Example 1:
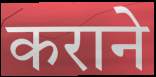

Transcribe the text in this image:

कराने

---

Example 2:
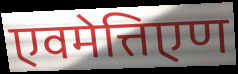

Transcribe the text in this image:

एवमेत्तिएण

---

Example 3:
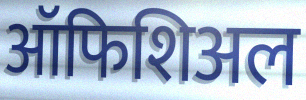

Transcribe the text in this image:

ऑफिशिअल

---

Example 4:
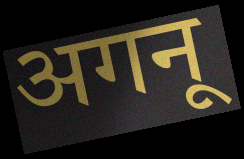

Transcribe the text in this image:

अगनू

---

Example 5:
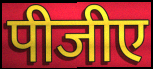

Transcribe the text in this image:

पीजीए